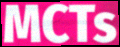
MCTs